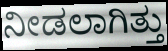
ನೀಡಲಾಗಿತ್ತು